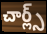
చార్ల్స్